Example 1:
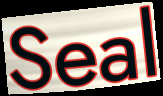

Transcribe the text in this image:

Seal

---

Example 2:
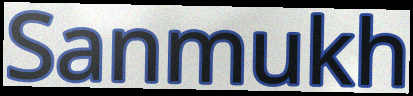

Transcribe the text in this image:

Sanmukh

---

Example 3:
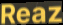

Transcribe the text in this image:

Reaz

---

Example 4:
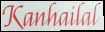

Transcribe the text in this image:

Kanhailal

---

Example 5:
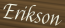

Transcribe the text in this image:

Erikson